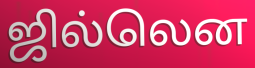
ஜில்லென